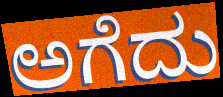
ಅಗೆದು